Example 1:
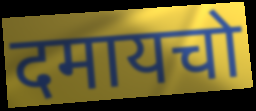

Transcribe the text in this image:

दमायचो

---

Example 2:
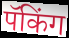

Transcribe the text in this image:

पॅकिंग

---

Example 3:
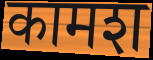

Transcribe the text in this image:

कामश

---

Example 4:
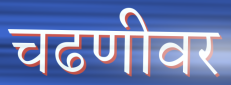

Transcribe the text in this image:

चढणीवर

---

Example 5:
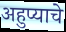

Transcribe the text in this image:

अहुप्याचे